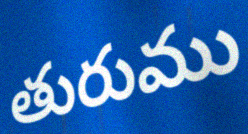
తురుము